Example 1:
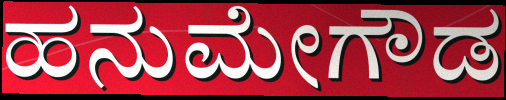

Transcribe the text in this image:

ಹನುಮೇಗೌಡ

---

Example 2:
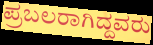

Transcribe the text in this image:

ಪ್ರಬಲರಾಗಿದ್ದವರು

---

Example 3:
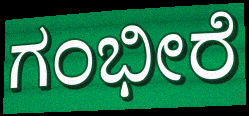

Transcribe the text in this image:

ಗಂಭೀರೆ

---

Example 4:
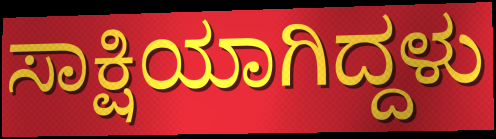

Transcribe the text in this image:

ಸಾಕ್ಷಿಯಾಗಿದ್ದಳು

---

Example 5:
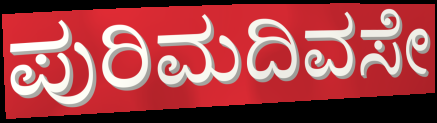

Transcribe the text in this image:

ಪುರಿಮದಿವಸೇ